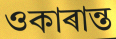
ওকাৰান্ত